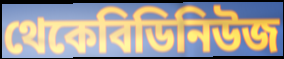
থেকেবিডিনিউজ